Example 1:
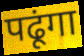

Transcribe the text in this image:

पढूंगा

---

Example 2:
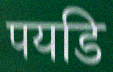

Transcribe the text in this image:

पयडि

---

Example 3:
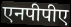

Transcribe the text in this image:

एनपीपीए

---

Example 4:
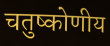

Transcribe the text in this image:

चतुष्कोणीय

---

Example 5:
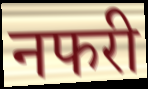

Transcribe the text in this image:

नफरी